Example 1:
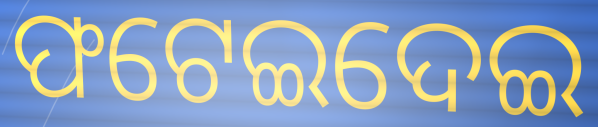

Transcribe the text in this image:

ଫଟେଇଦେଇ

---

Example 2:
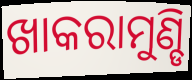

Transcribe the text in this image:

ଖାକରାମୁଣ୍ଡି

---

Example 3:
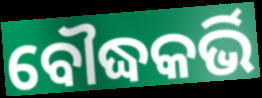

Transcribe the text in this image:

ବୌଦ୍ଧକର୍ଭି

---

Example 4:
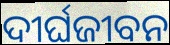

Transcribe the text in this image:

ଦୀର୍ଘଜୀବନ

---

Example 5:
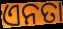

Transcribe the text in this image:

ଏନତା